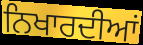
ਨਿਖਾਰਦੀਆਂ